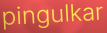
pingulkar